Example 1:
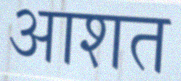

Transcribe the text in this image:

आशत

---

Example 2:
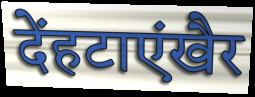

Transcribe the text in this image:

देंहटाएंखैर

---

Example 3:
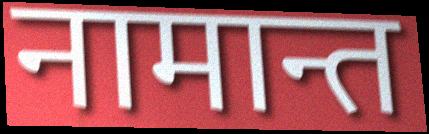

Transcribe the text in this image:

नामान्त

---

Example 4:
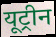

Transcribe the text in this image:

यूट्रीन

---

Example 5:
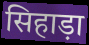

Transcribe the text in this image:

सिहाड़ा